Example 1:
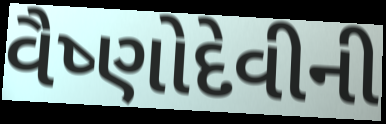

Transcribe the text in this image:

વૈષ્ણોદેવીની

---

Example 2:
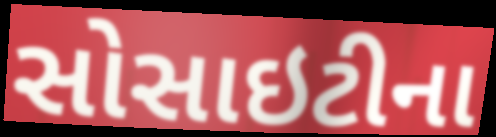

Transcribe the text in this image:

સોસાઇટીના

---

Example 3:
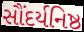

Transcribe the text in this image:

સૌંદર્યનિષ્ઠ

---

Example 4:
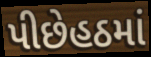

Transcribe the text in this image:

પીછેહઠમાં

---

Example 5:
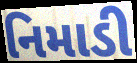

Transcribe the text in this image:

નિમાડી